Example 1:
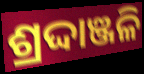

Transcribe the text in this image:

ଶ୍ରଦ୍ଦାଞ୍ଜଳି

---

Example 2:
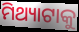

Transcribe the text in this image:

ମିଥ୍ୟାଟାକୁ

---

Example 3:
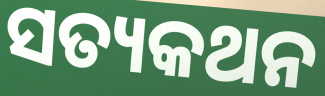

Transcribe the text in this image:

ସତ୍ୟକଥନ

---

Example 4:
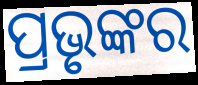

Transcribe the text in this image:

ପ୍ରଭୃଙ୍କର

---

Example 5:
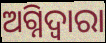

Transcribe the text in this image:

ଅଗ୍ନିଦ୍ଵାରା